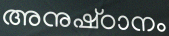
അനുഷ്‌ഠാനം